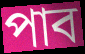
পাব